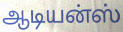
ஆடியன்ஸ்